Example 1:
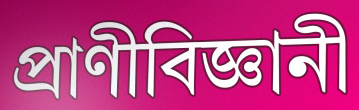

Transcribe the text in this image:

প্রাণীবিজ্ঞানী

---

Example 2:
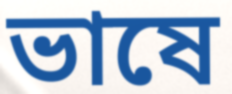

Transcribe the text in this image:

ভাষে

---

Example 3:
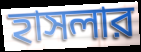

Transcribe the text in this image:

হাসলার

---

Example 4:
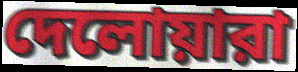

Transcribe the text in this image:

দেলোয়ারা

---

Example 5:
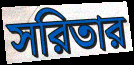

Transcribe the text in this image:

সরিতার